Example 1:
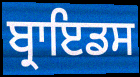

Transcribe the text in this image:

ਬ੍ਰਾਇਡਸ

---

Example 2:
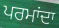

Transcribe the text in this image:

ਪਰਮਾਂਦਾ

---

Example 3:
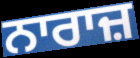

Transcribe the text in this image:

ਨਾਰਾਜ਼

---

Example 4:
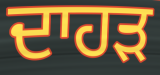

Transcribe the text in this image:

ਦਾਹੜ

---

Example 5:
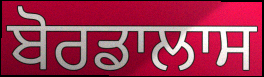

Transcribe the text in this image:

ਬੋਰਡਾਲਾਸ